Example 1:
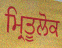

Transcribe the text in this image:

ਮ੍ਰਿਤੂਲੋਕ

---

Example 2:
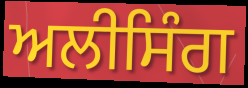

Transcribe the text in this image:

ਅਲੀਸਿੰਗ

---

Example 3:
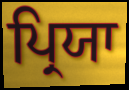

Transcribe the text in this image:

ਪ੍ਰਿਯਾ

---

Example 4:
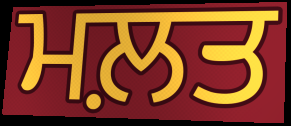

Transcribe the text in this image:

ਮਲ਼ਤ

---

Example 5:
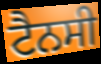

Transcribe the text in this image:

ਟੈਨਸੀ